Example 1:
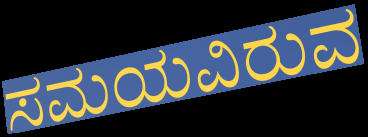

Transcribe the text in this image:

ಸಮಯವಿರುವ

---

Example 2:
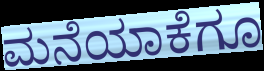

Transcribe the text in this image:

ಮನೆಯಾಕೆಗೂ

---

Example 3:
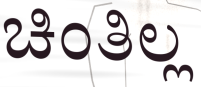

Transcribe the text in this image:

ಚಿಂತಿಲ್ಲ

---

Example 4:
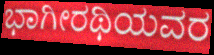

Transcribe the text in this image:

ಭಾಗೀರಥಿಯವರ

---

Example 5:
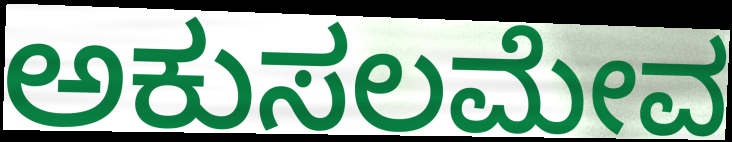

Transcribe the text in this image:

ಅಕುಸಲಮೇವ